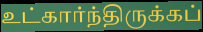
உட்கார்ந்திருக்கப்